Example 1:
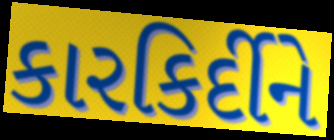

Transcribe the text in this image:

કારકિર્દીને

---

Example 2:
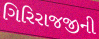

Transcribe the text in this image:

ગિરિરાજજીની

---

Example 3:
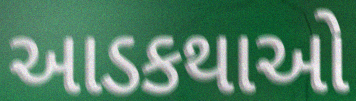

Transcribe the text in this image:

આડકથાઓ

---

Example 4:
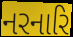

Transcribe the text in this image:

નરનારિ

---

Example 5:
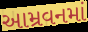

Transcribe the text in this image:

આમ્રવનમાં